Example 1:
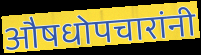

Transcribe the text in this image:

औषधोपचारांनी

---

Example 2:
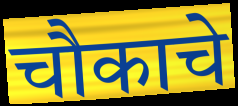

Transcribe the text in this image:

चौकाचे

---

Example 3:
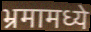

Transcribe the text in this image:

भ्रमामध्ये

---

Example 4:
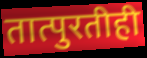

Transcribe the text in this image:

तात्पुरतीही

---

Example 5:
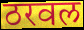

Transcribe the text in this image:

ठरवल